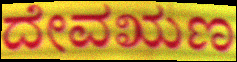
ದೇವಋಣ